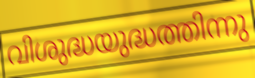
വിശുദ്ധയുദ്ധത്തിന്നു